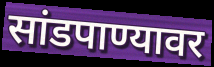
सांडपाण्यावर